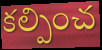
కల్పించ